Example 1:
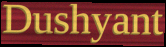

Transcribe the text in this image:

Dushyant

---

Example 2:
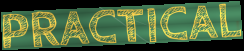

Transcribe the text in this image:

PRACTICAL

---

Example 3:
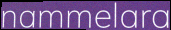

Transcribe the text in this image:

nammelara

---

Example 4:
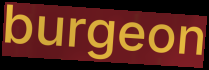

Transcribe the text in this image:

burgeon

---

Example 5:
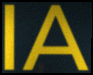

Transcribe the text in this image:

IA